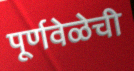
पूर्णवेळेची